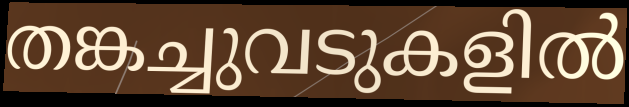
തങ്കച്ചുവടുകളിൽ